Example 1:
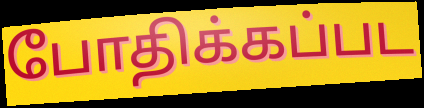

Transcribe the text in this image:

போதிக்கப்பட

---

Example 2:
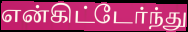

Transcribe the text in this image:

என்கிட்டேர்ந்து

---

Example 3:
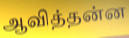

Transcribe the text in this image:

ஆவித்தன்ன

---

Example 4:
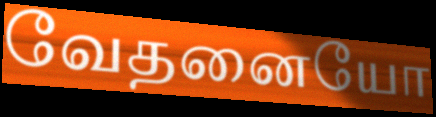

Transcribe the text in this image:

வேதனையோ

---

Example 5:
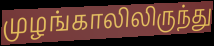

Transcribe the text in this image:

முழங்காலிலிருந்து